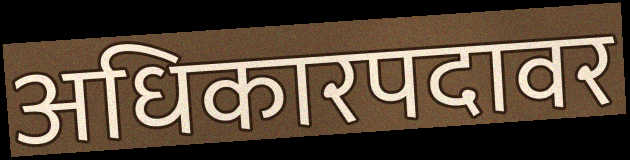
अधिकारपदावर